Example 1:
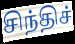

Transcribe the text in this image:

சிந்திச்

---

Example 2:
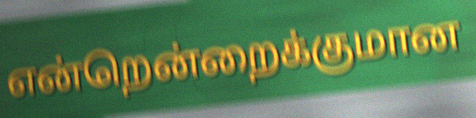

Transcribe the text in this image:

என்றென்றைக்குமான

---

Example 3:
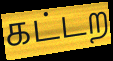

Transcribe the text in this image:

கட்டற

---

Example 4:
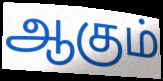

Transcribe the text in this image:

ஆகும்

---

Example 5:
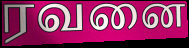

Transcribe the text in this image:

ரவனை